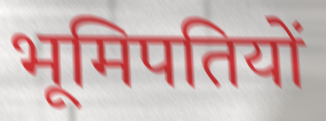
भूमिपतियों